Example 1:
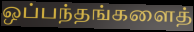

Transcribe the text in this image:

ஒப்பந்தங்களைத்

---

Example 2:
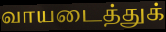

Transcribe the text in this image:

வாயடைத்துக்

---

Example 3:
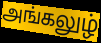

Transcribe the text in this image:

அங்கலுழ்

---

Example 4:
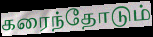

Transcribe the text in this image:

கரைந்தோடும்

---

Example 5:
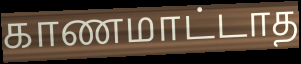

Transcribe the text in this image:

காணமாட்டாத